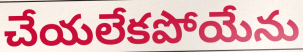
చేయలేకపోయేను